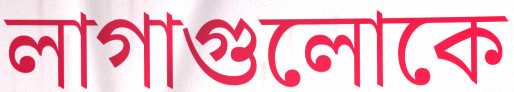
লাগাগুলোকে